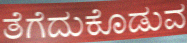
ತೆಗೆದುಕೊಡುವ